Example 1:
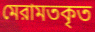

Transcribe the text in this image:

মেরামতকৃত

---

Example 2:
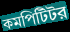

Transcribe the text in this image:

কমপিটিটর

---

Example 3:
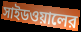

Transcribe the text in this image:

সাইডওয়ালের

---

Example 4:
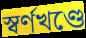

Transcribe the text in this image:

স্বর্ণখণ্ডে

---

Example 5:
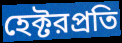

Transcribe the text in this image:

হেক্টরপ্রতি